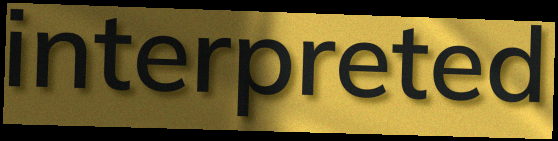
interpreted